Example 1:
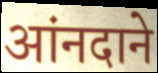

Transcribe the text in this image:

आंनदाने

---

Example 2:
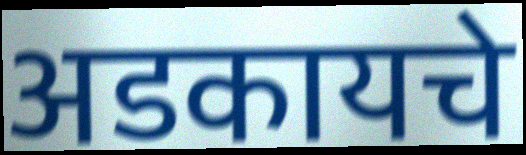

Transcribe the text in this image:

अडकायचे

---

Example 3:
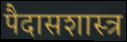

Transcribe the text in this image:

पैदासशास्त्र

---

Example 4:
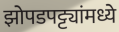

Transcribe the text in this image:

झोपडपट्ट्यांमध्ये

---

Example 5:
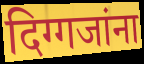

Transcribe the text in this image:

दिग्गजांना